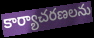
కార్యాచరణలను